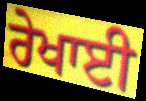
ਰੇਖਾਈ